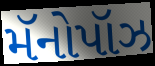
મૅનોપૉઝ